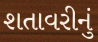
શતાવરીનું